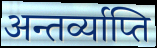
अन्तर्व्याप्ति